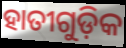
ହାତୀଗୁଡ଼ିକ